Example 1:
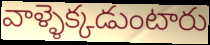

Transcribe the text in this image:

వాళ్ళెక్కడుంటారు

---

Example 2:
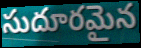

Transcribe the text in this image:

సుదూరమైన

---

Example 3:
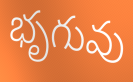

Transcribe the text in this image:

భృగువు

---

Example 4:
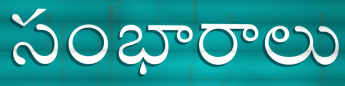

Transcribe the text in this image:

సంభారాలు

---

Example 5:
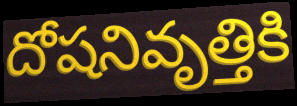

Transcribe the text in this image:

దోషనివృత్తికి